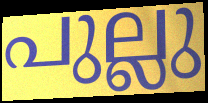
പുല്ലു